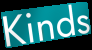
Kinds